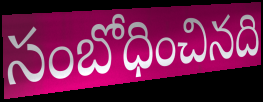
సంబోధించినది